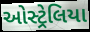
ઓસ્ટ્રેલિયા